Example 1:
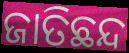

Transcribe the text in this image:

ଜାତିଛନ୍ଦ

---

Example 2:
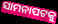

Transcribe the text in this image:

ସାମନାପଟକୁ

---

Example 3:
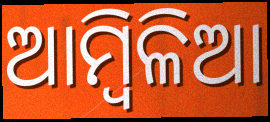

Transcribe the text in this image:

ଆମ୍ୱିଳିଆ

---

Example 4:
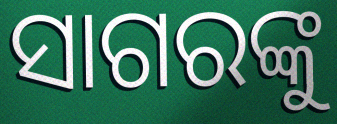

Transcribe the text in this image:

ସାଗରଙ୍କୁ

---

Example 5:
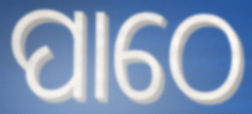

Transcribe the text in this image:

ପାଠେ